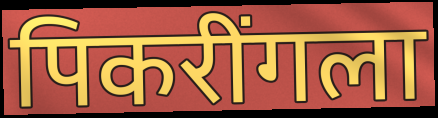
पिकरींगला